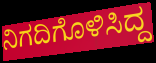
ನಿಗದಿಗೊಳಿಸಿದ್ದ